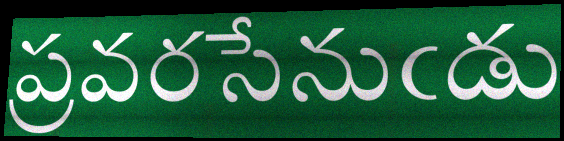
ప్రవరసేనుఁడు